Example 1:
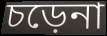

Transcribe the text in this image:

চড়েনা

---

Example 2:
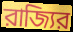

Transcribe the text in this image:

রাজ্যির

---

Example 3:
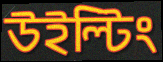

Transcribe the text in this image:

উইল্টিং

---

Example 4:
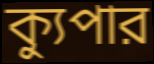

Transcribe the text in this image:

ক্যুপার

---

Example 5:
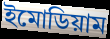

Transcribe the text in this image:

ইমোডিয়াম